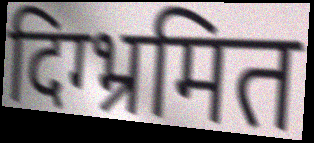
दिग्भ्रमित